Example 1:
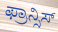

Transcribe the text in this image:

ಫ್ರಾನ್ಸಿಸ್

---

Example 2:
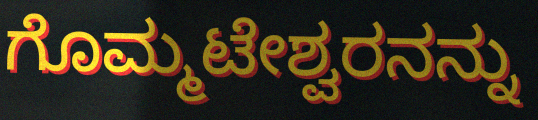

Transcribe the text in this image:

ಗೊಮ್ಮಟೇಶ್ವರನನ್ನು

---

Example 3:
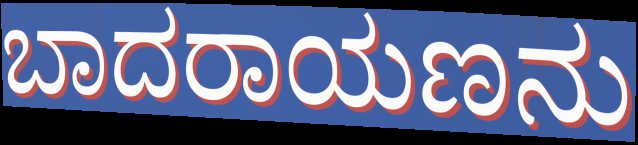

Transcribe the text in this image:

ಬಾದರಾಯಣನು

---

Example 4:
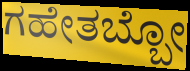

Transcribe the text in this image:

ಗಹೇತಬ್ಬೋ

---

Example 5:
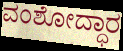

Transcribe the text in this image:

ವಂಶೋದ್ಧಾರ